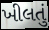
ખીલતું